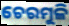
ଚେରମୁଳି